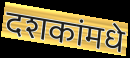
दशकांमधे